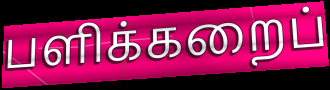
பளிக்கறைப்